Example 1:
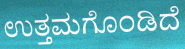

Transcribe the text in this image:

ಉತ್ತಮಗೊಂಡಿದೆ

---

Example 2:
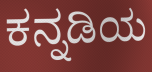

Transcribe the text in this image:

ಕನ್ನಡಿಯ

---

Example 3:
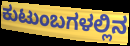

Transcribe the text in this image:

ಕುಟುಂಬಗಳಲ್ಲಿನ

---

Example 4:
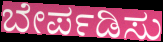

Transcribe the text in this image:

ಬೇರ್ಪಡಿಸು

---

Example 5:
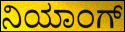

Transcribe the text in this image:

ನಿಯಾಂಗ್